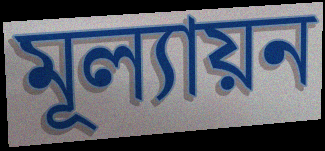
মূল্যায়ন